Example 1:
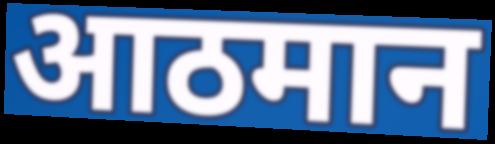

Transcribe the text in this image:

आठमान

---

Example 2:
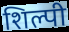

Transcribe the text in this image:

शिल्‍पी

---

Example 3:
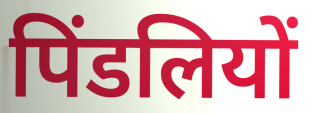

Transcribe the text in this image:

पिंडलियों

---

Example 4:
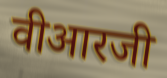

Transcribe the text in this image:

वीआरजी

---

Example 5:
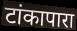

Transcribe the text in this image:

टांकापारा